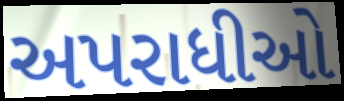
અપરાધીઓ